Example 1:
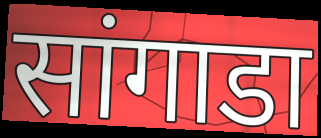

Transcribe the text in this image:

सांगाडा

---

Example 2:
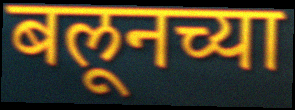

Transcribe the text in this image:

बलूनच्या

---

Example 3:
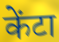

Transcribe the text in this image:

केंटा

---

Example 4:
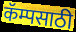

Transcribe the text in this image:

कॅम्पसाठी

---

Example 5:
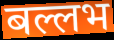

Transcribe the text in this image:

बल्लभ